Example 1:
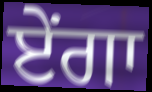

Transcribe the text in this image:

ਏਂਗਾ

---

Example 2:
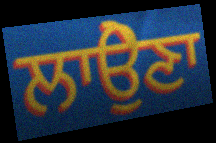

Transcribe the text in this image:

ਲਾਉੇਣਾ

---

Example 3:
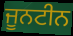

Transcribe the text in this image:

ਜੂਨਟੀਨ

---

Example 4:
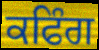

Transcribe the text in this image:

ਕਫਿੰਗ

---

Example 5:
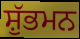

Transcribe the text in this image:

ਸ਼ੁੱਭਮਨ